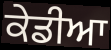
ਕੇਡੀਆ